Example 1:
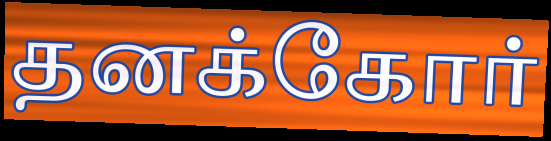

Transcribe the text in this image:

தனக்கோர்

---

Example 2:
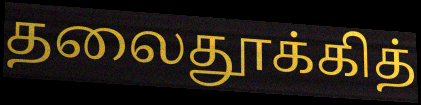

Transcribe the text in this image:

தலைதூக்கித்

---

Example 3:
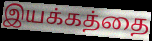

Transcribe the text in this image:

இயக்கத்தை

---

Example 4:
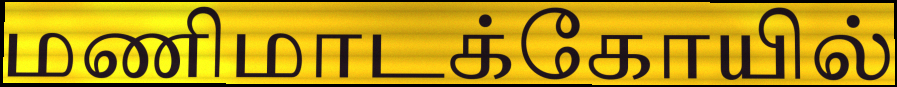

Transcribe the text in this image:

மணிமாடக்கோயில்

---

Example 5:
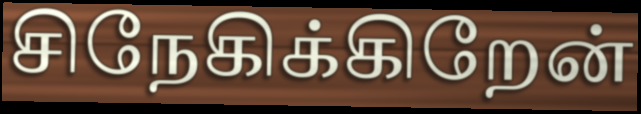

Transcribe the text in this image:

சிநேகிக்கிறேன்